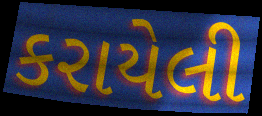
કરાયેલી